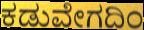
ಕಡುವೇಗದಿಂ